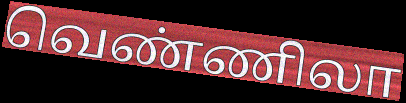
வெண்ணிலா